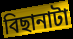
বিছানাটা